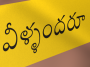
వీళ్ళందరూ